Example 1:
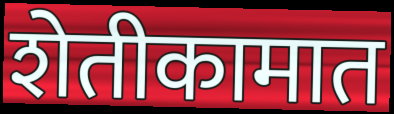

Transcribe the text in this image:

शेतीकामात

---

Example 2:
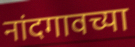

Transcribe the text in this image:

नांदगावच्या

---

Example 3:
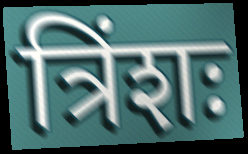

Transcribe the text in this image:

त्रिंशः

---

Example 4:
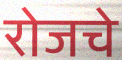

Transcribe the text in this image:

रोजचे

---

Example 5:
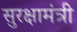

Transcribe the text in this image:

सुरक्षामंत्री